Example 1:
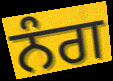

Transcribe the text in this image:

ਨੰਗ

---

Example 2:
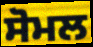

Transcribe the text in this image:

ਸੋਮਲ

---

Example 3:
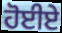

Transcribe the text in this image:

ਹੋਈਏ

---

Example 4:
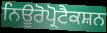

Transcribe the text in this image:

ਨਿਊਰੋਪ੍ਰੋਟੈਕਸ਼ਨ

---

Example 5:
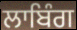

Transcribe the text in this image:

ਲਾਬਿੰਗ